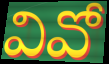
వివో